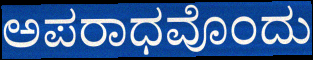
ಅಪರಾಧವೊಂದು